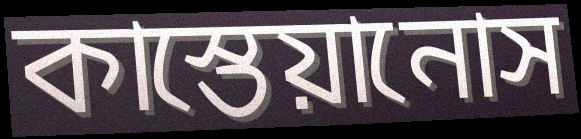
কাস্তেয়ানোস